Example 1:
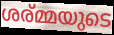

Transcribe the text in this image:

ശര്മ്മയുടെ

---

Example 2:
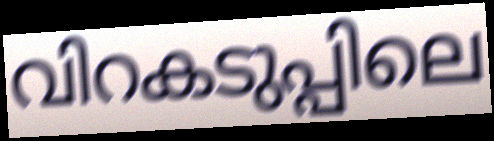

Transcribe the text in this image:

വിറകടുപ്പിലെ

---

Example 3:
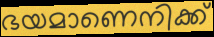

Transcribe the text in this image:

ഭയമാണെനിക്ക്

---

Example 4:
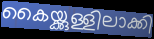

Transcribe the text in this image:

കൈയ്ക്കുള്ളിലാക്കി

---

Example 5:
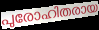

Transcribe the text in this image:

പുരോഹിതരായ